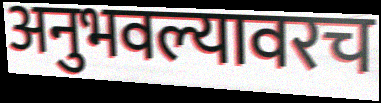
अनुभवल्यावरच